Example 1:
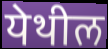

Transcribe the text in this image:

येथील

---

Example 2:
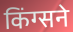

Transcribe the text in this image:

किंग्सने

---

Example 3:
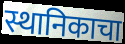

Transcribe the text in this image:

स्थानिकाचा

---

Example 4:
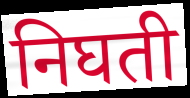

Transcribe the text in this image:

निघती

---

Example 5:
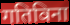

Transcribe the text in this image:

गतिविना